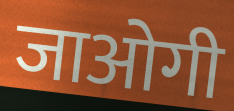
जाओगी